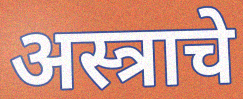
अस्त्राचे